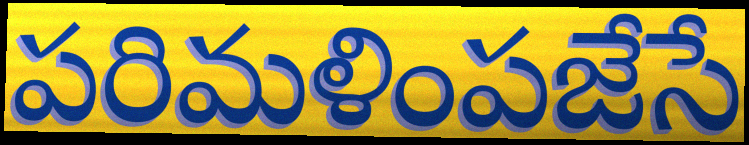
పరిమళింపజేసే